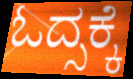
ಓದ್ಸಕ್ಕೆ